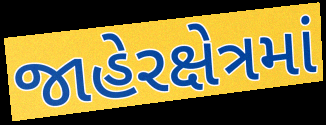
જાહેરક્ષેત્રમાં